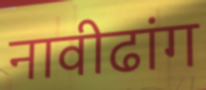
नावीढांग